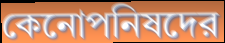
কেনোপনিষদের